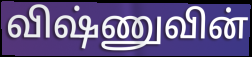
விஷ்ணுவின்